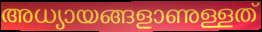
അധ്യായങ്ങളാണുള്ളത്